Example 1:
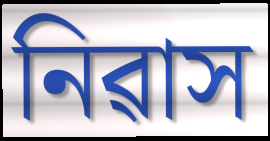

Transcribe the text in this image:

নিৱাস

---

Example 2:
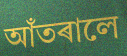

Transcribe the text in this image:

আঁতৰালে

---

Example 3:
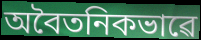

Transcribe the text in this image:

অবৈতনিকভাৱে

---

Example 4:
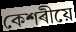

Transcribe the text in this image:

কেশৰীয়ে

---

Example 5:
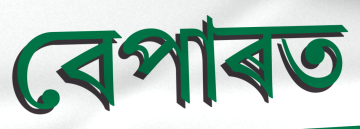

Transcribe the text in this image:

বেপাৰত